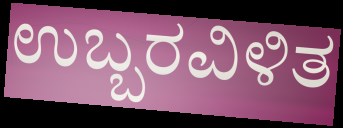
ಉಬ್ಬರವಿಳಿತ